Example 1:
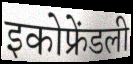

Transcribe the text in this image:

इकोफ्रेंडली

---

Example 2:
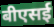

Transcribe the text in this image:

बीएसई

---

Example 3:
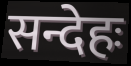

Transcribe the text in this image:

सन्देहः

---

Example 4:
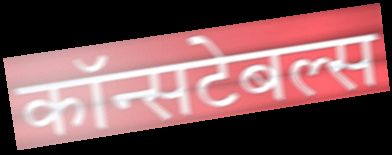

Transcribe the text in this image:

कॉन्सटेबल्स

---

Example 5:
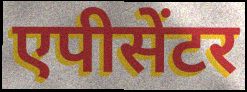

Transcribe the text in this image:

एपीसेंटर